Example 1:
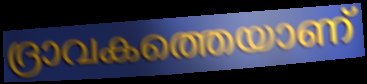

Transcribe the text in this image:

ദ്രാവകത്തെയാണ്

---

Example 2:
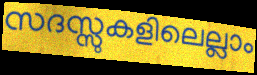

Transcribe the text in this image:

സദസ്സുകളിലെല്ലാം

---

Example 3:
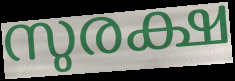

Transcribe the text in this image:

സുരക്ഷ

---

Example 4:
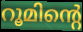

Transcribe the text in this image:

റൂമിന്റെ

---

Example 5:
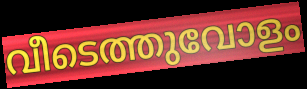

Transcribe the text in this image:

വീടെത്തുവോളം